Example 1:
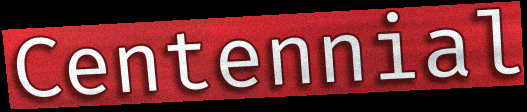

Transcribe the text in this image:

Centennial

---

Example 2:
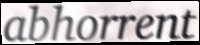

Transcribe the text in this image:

abhorrent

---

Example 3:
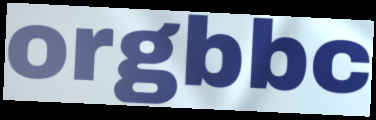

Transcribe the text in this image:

orgbbc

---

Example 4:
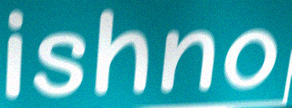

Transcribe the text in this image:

ishno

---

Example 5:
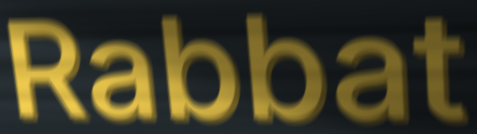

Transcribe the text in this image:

Rabbat